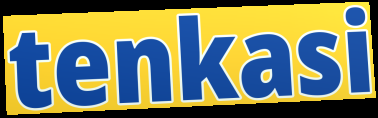
tenkasi